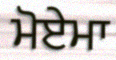
ਮੋਏਮਾ